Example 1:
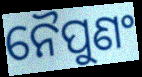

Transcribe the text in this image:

ନୈପୁଣଂ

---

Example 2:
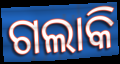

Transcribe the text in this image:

ଗଲାକି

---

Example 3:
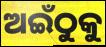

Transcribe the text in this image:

ଅଇଁଠୁକୁ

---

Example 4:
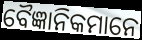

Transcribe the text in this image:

ବୈଜ୍ଞାନିକମାନେ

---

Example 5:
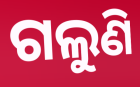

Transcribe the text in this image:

ଗଲୁଣି